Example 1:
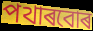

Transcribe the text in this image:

পথাৰবোৰ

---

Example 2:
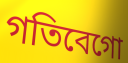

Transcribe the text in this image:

গতিবেগো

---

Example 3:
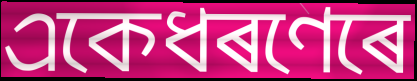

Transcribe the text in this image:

একেধৰণেৰে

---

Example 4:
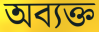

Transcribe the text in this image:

অব্যক্ত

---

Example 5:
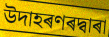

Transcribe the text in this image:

উদাহৰণৰদ্বাৰা